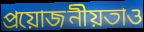
প্রয়োজনীয়তাও